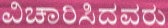
ವಿಚಾರಿಸಿದವರು